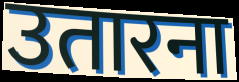
उतारना